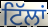
ਟਿੱਲਾਂ